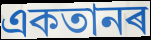
একতানৰ